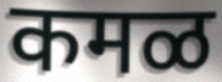
कमळ